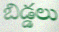
బిడ్డలు